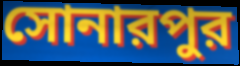
সোনারপুর